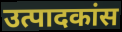
उत्पादकांस